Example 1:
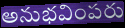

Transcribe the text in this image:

అనుభవింపరు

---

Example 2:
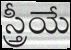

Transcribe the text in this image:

స్త్రీయే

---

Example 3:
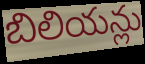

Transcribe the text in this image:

బిలియన్లు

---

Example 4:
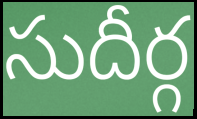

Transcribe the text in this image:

సుదీర్గ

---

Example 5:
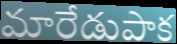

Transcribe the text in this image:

మారేడుపాక